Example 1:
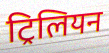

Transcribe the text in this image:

ट्रिलियन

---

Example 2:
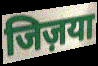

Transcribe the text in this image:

जिज़या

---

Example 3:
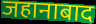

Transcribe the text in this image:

जहानाबाद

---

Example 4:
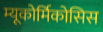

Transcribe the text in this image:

म्यूकोर्मिकोसिस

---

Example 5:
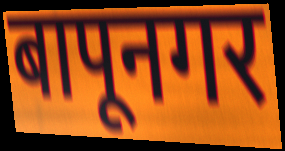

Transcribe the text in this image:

बापूनगर